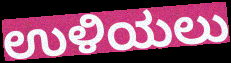
ಉಳಿಯಲು